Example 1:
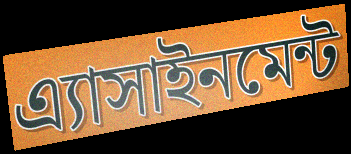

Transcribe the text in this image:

এ্যাসাইনমেন্ট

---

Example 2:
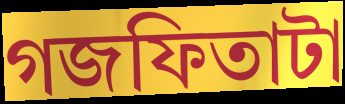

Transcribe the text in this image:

গজফিতাটা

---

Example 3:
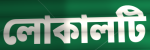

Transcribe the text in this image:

লোকালটি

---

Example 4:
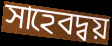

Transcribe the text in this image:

সাহেবদ্বয়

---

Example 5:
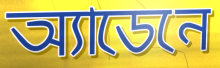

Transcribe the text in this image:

অ্যাডেনে